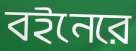
বইনেরে